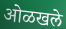
ओळखले